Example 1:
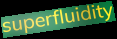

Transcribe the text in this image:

superfluidity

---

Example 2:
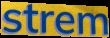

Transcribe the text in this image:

strem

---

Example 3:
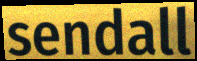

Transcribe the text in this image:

sendall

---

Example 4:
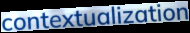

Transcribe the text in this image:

contextualization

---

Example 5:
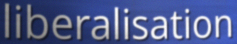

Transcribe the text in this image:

liberalisation